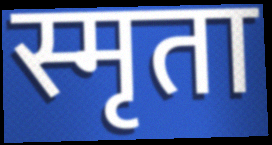
स्मृता